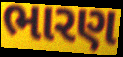
ભારણ